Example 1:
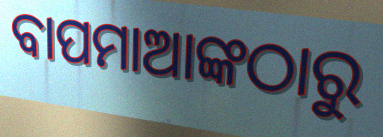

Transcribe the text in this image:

ବାପମାଆଙ୍କଠାରୁ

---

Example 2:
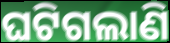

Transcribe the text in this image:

ଘଟିଗଲାଣି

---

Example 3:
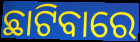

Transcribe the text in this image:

ଛାଟିବାରେ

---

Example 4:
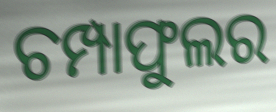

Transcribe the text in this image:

ଚମ୍ପାଫୁଲର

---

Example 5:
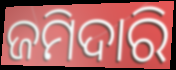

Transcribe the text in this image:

ଜମିଦାରି